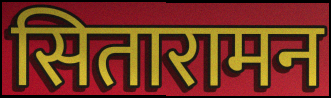
सितारामन